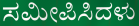
ಸಮೀಪಿಸಿದಳು